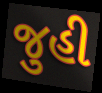
જુહી